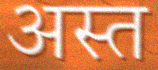
अस्त